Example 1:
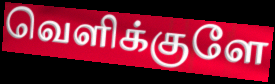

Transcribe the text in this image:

வெளிக்குளே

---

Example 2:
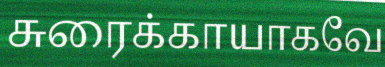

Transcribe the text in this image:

சுரைக்காயாகவே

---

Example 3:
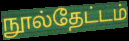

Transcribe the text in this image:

நூல்தேட்டம்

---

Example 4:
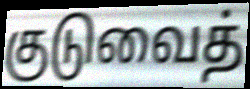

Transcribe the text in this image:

குடுவைத்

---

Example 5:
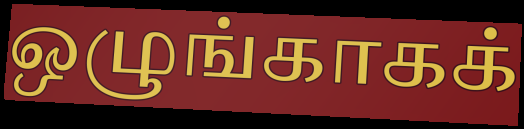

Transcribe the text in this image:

ஒழுங்காகக்